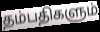
தம்பதிகளும்